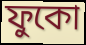
ফুকো